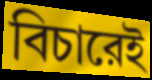
বিচারেই